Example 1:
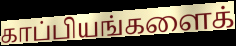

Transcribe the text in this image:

காப்பியங்களைக்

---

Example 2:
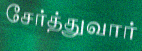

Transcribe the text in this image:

சேர்த்துவார்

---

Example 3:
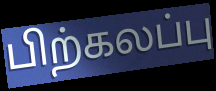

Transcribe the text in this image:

பிற்கலப்பு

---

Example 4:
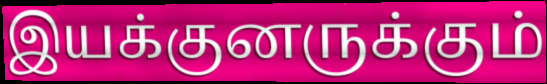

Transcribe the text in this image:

இயக்குனருக்கும்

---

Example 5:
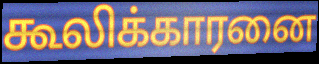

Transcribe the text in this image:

கூலிக்காரனை